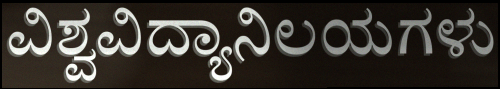
ವಿಶ್ವವಿದ್ಯಾನಿಲಯಗಳು